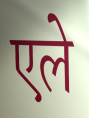
एले